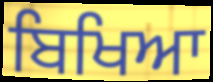
ਬਿਖਿਆ